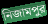
নিজামপুর